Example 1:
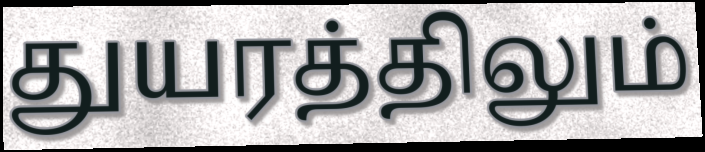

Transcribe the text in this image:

துயரத்திலும்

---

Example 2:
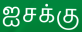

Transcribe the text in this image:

ஐசக்கு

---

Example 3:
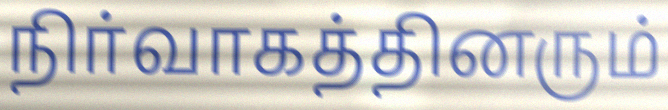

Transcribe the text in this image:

நிர்வாகத்தினரும்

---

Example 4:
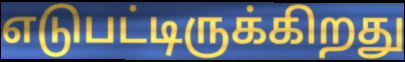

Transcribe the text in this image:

எடுபட்டிருக்கிறது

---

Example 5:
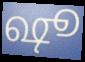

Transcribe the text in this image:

ஷூ